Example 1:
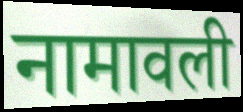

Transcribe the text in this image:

नामावली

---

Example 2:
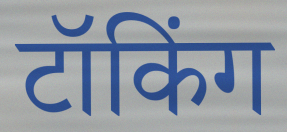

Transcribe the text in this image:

टॉकिंग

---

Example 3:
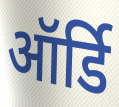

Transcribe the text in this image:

ऑर्डि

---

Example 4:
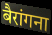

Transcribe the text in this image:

बैरांगना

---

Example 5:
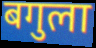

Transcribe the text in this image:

बगुला